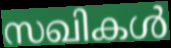
സഖികൾ